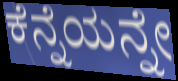
ಕೆನ್ನೆಯನ್ನೇ